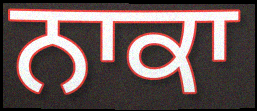
ਨਾਕਾ